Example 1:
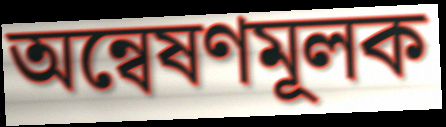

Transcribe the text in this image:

অন্বেষণমূলক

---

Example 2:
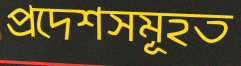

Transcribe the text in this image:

প্ৰদেশসমূহত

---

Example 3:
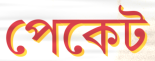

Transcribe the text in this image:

পেকেট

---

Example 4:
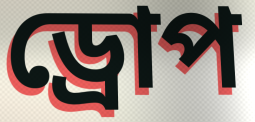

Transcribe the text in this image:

ড্ৰোপ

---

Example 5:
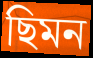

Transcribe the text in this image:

ছিমন